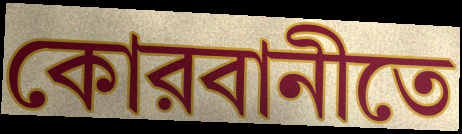
কোরবানীতে